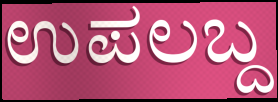
ಉಪಲಬ್ದ